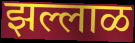
झल्लाळ